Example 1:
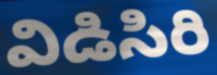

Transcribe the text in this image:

విడిసిరి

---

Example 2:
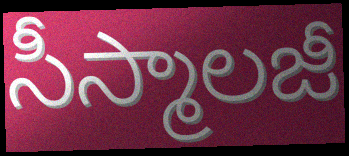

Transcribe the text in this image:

సీస్మాలజీ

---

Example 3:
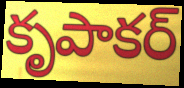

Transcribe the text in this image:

కృపాకర్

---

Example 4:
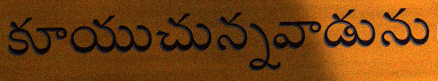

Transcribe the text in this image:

కూయుచున్నవాడును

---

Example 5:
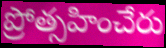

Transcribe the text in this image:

ప్రోత్సహించేరు